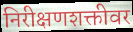
निरीक्षणशक्तीवर